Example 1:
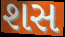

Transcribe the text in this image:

શસ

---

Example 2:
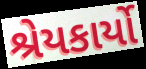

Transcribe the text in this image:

શ્રેયકાર્યો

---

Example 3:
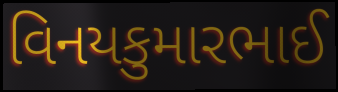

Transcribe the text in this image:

વિનયકુમારભાઈ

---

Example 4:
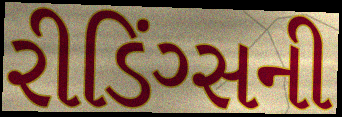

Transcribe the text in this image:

રીડિંગ્સની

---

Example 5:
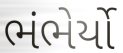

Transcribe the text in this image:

ભંભેર્યો